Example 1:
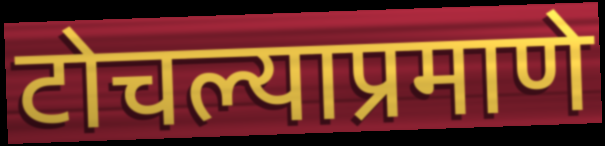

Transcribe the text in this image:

टोचल्याप्रमाणे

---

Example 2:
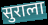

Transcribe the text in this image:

सुराला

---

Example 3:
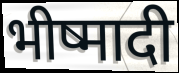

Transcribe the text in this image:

भीष्मादी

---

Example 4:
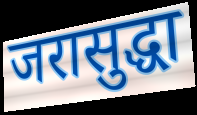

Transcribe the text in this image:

जरासुद्धा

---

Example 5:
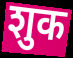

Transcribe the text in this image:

शुक